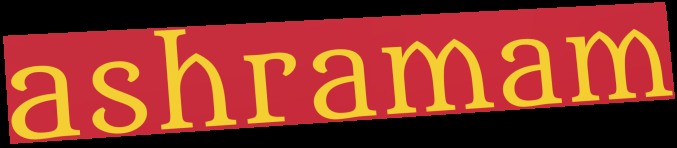
ashramam